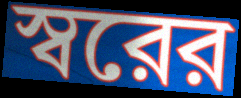
স্বরের